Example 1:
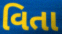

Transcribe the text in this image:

વિતા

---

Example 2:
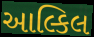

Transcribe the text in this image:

આલ્કિલ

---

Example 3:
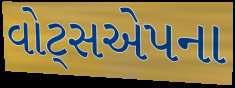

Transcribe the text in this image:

વોટ્સએપના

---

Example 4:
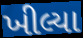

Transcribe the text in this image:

ખીલ્યા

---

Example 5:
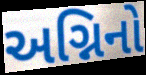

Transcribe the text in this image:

અગ્નિનો